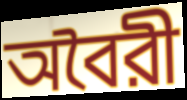
অবৈরী